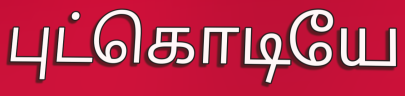
புட்கொடியே